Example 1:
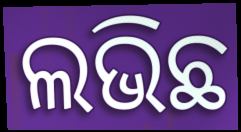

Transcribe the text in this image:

ଲଭିଛ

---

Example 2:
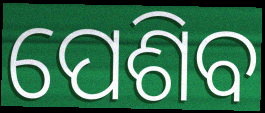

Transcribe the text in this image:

ପେଶିବ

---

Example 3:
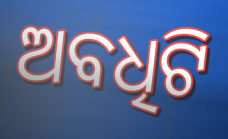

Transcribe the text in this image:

ଅବଧିଟି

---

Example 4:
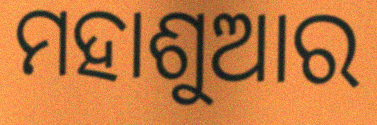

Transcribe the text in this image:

ମହାଶୁଆର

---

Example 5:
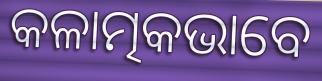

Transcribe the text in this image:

କଳାତ୍ମକଭାବେ